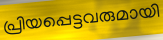
പ്രിയപ്പെട്ടവരുമായി